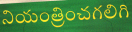
నియంత్రించగలిగి